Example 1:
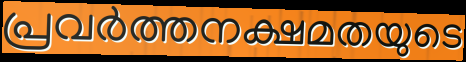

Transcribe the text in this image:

പ്രവർത്തനക്ഷമതയുടെ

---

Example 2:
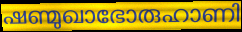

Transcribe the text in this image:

ഷണ്മുഖാഭോരുഹാണി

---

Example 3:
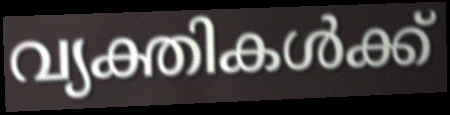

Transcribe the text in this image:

വ്യക്തികൾക്ക്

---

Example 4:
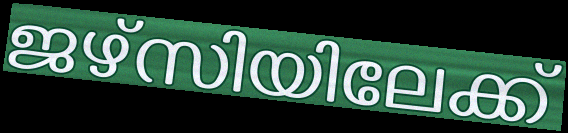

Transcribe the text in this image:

ജഴ്സിയിലേക്ക്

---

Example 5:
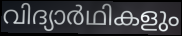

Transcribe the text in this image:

വിദ്യാർഥികളും